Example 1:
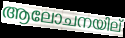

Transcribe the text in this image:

ആലോചനയില്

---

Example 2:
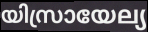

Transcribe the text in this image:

യിസ്രായേല്യ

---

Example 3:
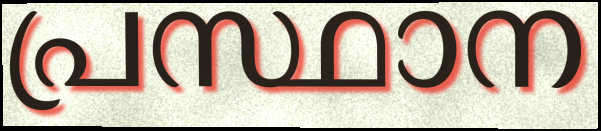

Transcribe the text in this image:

പ്രസ്ഥാന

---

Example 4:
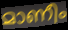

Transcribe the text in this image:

മാണീം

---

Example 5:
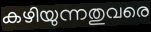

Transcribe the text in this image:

കഴിയുന്നതുവരെ